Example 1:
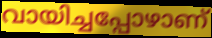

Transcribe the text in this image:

വായിച്ചപ്പോഴാണ്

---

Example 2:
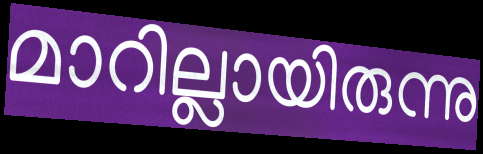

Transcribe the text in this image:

മാറില്ലായിരുന്നു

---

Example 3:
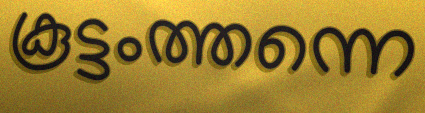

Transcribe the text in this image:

കൂട്ടംത്തന്നെ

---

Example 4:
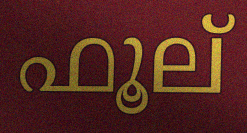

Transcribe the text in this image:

ഫൂല്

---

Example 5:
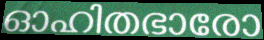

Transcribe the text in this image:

ഓഹിതഭാരോ